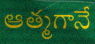
ఆత్మగానే